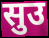
सुउ